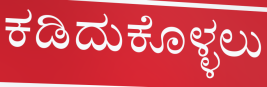
ಕಡಿದುಕೊಳ್ಳಲು